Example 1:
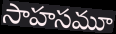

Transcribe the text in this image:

సాహసమూ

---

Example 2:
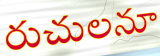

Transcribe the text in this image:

రుచులనూ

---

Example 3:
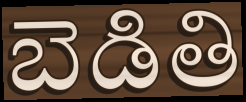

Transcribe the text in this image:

బెడితి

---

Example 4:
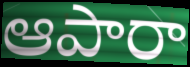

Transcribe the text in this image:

ఆపారా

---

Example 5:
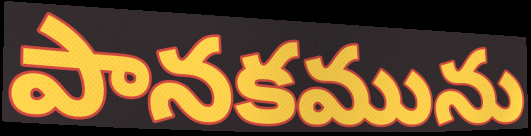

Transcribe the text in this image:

పానకమును